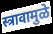
स्त्रावामुळे